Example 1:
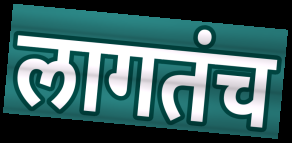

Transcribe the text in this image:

लागतंच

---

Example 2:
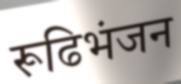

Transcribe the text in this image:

रूढिभंजन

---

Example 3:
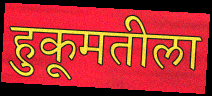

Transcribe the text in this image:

हुकूमतीला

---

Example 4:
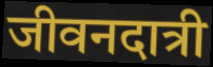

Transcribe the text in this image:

जीवनदात्री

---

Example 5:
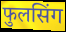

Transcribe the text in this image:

फुलसिंग